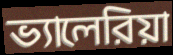
ভ্যালেরিয়া